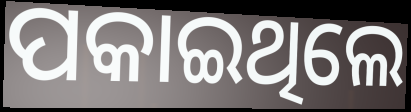
ପକାଇଥିଲେ